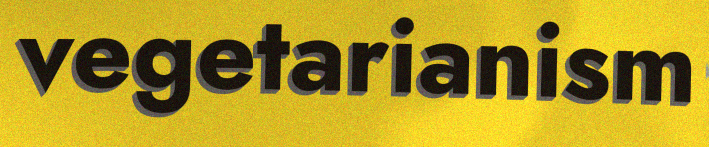
vegetarianism